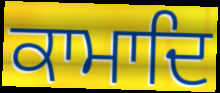
ਕਾਮਾਦਿ